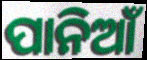
ପାନିଆଁ